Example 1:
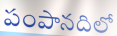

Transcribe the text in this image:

పంపానదిలో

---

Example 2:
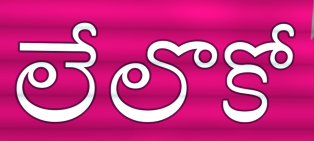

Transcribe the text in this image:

లేలొకో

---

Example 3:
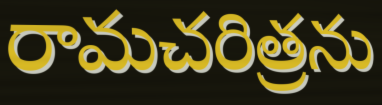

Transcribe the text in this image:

రామచరిత్రను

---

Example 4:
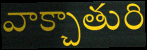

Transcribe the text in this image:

వాక్చాతురి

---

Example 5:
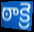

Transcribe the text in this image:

ఠాక్రె